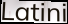
Latini